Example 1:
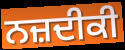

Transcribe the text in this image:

ਨਜ਼ਦੀਕੀ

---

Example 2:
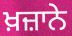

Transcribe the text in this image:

ਖ਼ਜ਼ਾਨੇ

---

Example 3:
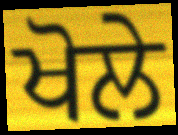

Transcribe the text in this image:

ਖੋਲੇ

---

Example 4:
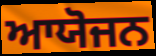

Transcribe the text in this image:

ਆਯੋਜਨ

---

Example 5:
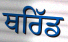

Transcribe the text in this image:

ਥਰਿੱਡ